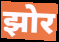
झोर